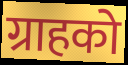
ग्राहको